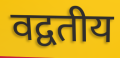
वद्वतीय